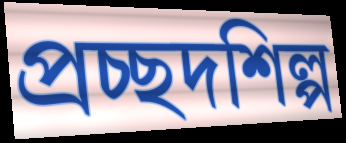
প্রচ্ছদশিল্প